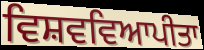
ਵਿਸ਼ਵਵਿਆਪੀਤਾ